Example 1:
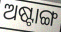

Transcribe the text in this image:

ଅଷ୍ଟାଙ୍ଗ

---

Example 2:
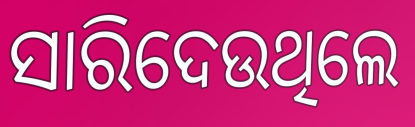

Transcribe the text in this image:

ସାରିଦେଉଥିଲେ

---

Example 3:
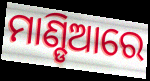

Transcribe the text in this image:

ମାଣ୍ଡିଆରେ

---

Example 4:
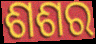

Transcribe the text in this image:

ଶଶର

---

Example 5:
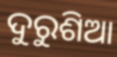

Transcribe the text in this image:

ଦୁରୁଶିଆ